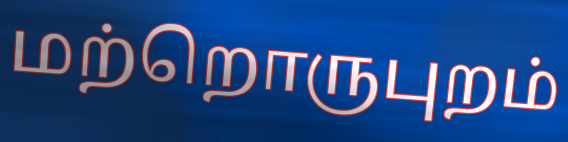
மற்றொருபுறம்